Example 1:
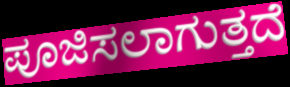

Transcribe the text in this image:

ಪೂಜಿಸಲಾಗುತ್ತದೆ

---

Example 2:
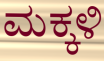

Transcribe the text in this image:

ಮಕ್ಕಳಿ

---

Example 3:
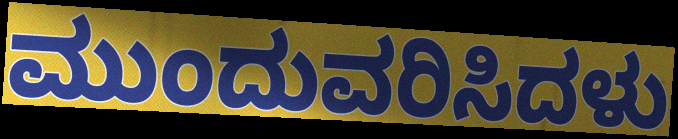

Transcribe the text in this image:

ಮುಂದುವರಿಸಿದಳು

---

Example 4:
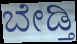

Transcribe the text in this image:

ಬೇಡ್ತಿ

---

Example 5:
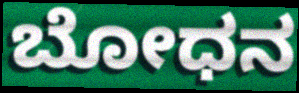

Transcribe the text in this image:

ಬೋಧನ